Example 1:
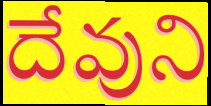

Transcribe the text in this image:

దేవుని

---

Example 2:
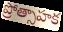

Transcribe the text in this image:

ప్రోత్సాహక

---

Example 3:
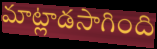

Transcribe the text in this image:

మాట్లాడసాగింది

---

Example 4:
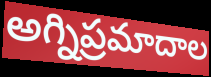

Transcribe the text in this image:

అగ్నిప్రమాదాల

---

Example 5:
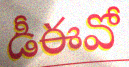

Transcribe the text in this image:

డీఈవో